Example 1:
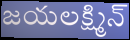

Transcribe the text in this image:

జయలక్ష్మిన్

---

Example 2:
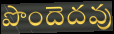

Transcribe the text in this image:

పొందెదవు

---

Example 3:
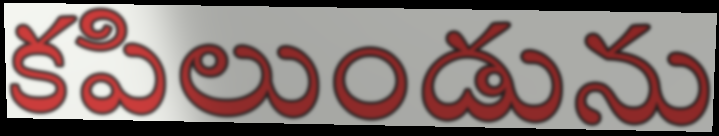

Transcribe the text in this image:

కపిలుండును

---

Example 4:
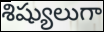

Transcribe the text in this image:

శిష్యులుగా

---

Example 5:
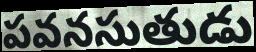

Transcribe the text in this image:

పవనసుతుడు